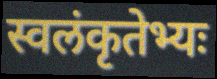
स्वलंकृतेभ्यः